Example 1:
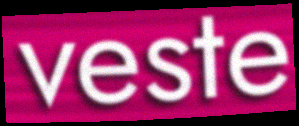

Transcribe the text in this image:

veste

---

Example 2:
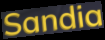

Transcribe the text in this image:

Sandia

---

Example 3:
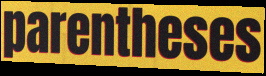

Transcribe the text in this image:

parentheses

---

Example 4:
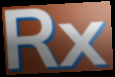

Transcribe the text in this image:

Rx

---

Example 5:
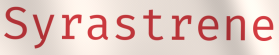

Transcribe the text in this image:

Syrastrene